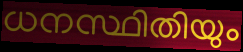
ധനസ്ഥിതിയും